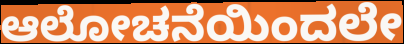
ಆಲೋಚನೆಯಿಂದಲೇ